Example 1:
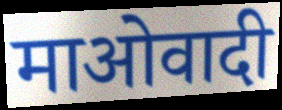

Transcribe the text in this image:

माओवादी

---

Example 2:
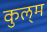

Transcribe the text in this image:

कुल्म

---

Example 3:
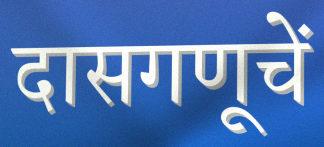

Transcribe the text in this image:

दासगणूचें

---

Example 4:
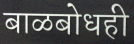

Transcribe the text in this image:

बाळबोधही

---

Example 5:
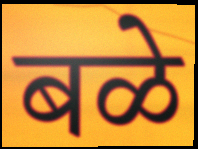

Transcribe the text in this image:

बळे